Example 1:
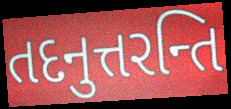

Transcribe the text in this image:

તદનુત્તરન્તિ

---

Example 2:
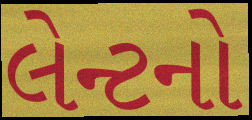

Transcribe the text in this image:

લેન્ટનો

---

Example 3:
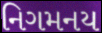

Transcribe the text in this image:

નિગમનય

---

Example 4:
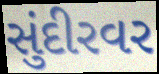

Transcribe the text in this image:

સુંદીરવર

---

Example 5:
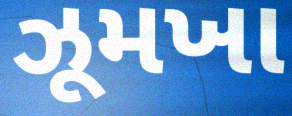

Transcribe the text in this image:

ઝૂમખા